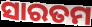
ସାରତମ